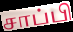
சாப்பி